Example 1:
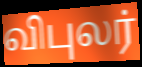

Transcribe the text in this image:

விபுலர்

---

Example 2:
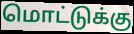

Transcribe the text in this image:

மொட்டுக்கு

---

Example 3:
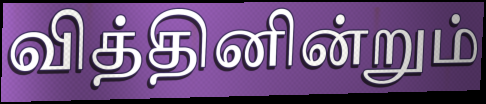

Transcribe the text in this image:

வித்தினின்றும்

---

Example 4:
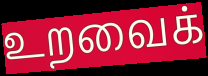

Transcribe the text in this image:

உறவைக்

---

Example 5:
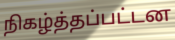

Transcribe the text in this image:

நிகழ்த்தப்பட்டன